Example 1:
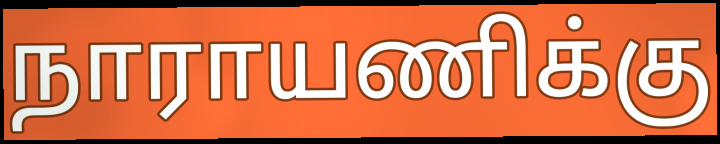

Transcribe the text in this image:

நாராயணிக்கு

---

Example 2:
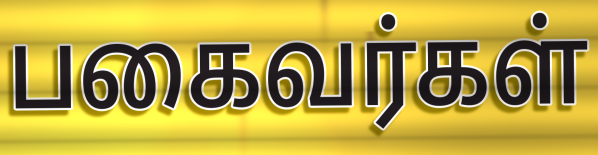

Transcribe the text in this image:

பகைவர்கள்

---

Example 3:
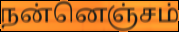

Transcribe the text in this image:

நன்னெஞ்சம்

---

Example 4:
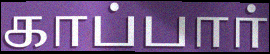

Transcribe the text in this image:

காப்பார்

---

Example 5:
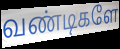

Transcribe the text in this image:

வண்டிகளே